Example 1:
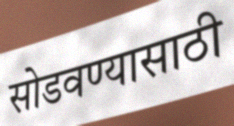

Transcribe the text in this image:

सोडवण्यासाठी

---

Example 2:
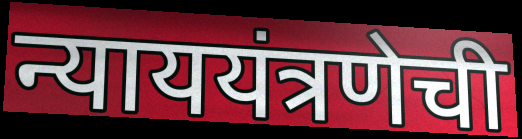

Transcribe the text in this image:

न्याययंत्रणेची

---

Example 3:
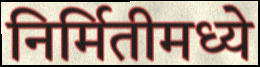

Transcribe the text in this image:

निर्मितीमध्ये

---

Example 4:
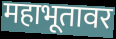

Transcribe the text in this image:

महाभूतावर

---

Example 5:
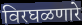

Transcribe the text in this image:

विरघळणारे